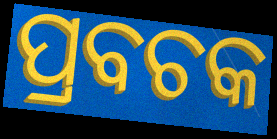
ପ୍ରବଚକ